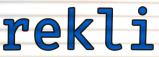
rekli